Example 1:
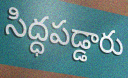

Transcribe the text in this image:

సిద్ధపడ్డారు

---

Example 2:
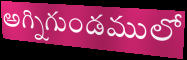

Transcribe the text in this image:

అగ్నిగుండములో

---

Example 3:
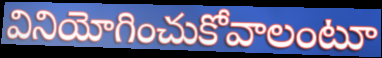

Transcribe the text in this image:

వినియోగించుకోవాలంటూ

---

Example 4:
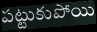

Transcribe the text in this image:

పట్టుకుపోయి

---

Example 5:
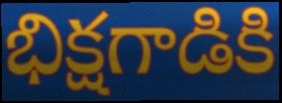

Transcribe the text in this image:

భిక్షగాడికి